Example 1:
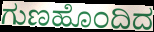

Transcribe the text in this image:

ಗುಣಹೊಂದಿದ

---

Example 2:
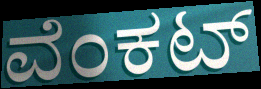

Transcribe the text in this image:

ವೆಂಕಟ್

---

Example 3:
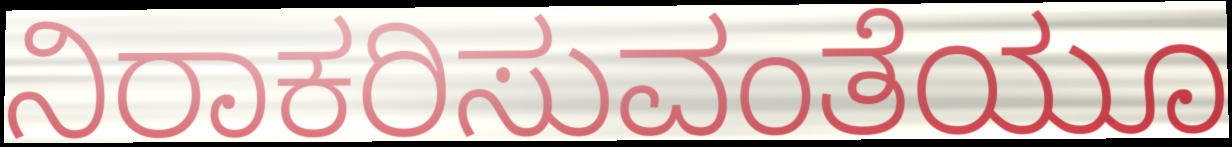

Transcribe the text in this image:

ನಿರಾಕರಿಸುವಂತೆಯೂ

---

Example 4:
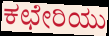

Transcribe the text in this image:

ಕಛೇರಿಯು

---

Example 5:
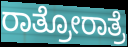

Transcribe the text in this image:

ರಾತ್ರೋರಾತ್ರೆ